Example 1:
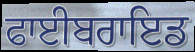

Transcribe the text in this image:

ਫਾਈਬਰਾਇਡ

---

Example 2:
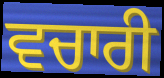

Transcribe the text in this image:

ਵਚਾਰੀ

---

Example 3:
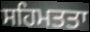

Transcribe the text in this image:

ਸਹਿਮਤਤਾ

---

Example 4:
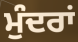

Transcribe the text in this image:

ਮੁੰਦਰਾਂ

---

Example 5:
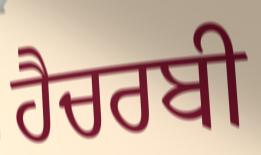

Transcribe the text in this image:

ਹੈਚਰਬੀ